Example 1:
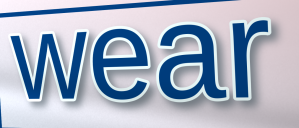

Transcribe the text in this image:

wear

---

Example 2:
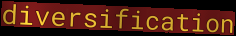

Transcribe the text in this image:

diversification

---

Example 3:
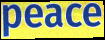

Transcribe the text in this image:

peace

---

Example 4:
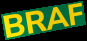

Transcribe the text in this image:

BRAF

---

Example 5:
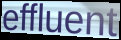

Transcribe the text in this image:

effluent